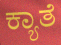
ಕ್ಯಾತೆ